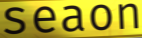
seaon